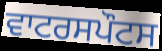
ਵਾਟਰਸਪੌਟਸ